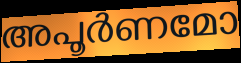
അപൂർണമോ